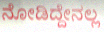
ನೋಡಿದ್ದೇನಲ್ಲ